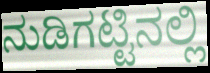
ನುಡಿಗಟ್ಟಿನಲ್ಲಿ